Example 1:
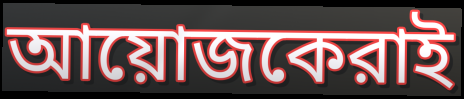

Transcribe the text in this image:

আয়োজকেরাই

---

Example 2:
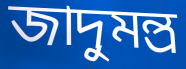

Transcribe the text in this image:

জাদুমন্ত্র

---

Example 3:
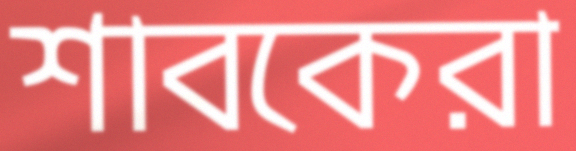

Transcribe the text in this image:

শাবকেরা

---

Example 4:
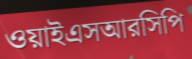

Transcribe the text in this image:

ওয়াইএসআরসিপি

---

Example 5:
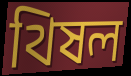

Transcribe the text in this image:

থিষল